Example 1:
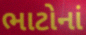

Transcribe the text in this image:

ભાટોનાં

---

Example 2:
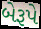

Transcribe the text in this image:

બેરૂપે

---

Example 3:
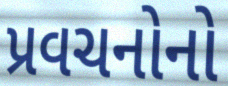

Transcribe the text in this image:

પ્રવચનોનો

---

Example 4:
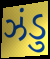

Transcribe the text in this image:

ઝંડુ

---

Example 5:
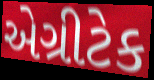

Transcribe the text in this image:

એગ્રીટેક